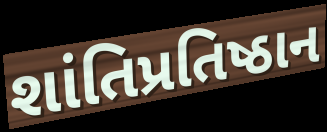
શાંતિપ્રતિષ્ઠાન